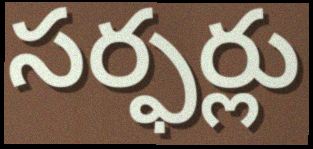
సర్ఫర్లు